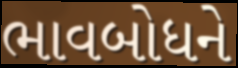
ભાવબોધને